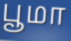
பூமா